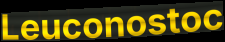
Leuconostoc